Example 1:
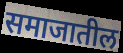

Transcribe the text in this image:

समाजातील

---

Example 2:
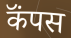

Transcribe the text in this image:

कॅंपस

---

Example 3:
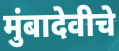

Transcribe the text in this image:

मुंबादेवीचे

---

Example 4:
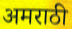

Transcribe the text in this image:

अमराठी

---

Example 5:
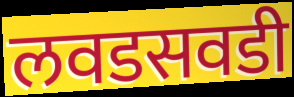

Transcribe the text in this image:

लवडसवडी